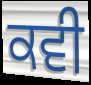
ਕਵੀ